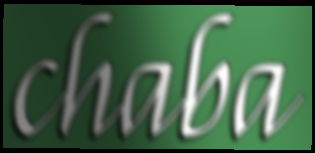
chaba